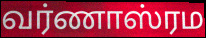
வர்ணாஸ்ரம